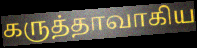
கருத்தாவாகிய